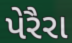
પેરૈરા